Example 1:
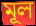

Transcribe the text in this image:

মূল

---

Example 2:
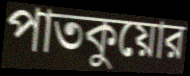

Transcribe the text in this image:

পাতকুয়োর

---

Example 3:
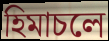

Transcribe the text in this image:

হিমাচলে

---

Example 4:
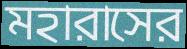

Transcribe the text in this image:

মহারাসের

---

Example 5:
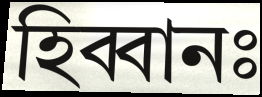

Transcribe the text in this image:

হিব্বানঃ